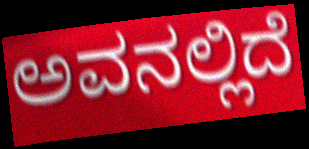
ಅವನಲ್ಲಿದೆ